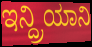
ಇನ್ದ್ರಿಯಾನಿ